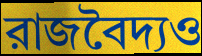
রাজবৈদ্যও